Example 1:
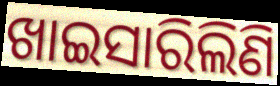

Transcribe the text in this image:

ଖାଇସାରିଲିଣି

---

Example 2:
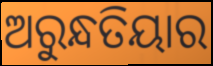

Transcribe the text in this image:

ଅରୁନ୍ଧତିୟାର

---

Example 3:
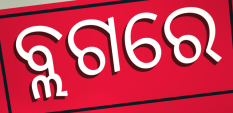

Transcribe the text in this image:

ବ୍ଲଗରେ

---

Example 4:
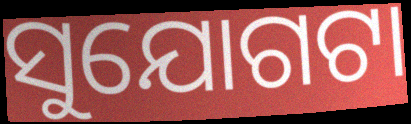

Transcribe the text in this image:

ସୁଯୋଗଟା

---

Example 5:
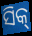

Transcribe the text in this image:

ସିକ୍